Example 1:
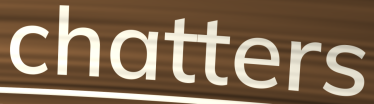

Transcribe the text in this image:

chatters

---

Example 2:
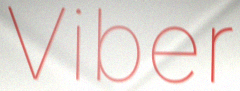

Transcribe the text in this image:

Viber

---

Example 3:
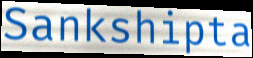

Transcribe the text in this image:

Sankshipta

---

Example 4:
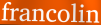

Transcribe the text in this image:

francolin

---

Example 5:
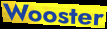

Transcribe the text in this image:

Wooster